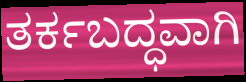
ತರ್ಕಬದ್ಧವಾಗಿ